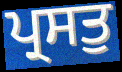
ਪ੍ਰਸਤੁ